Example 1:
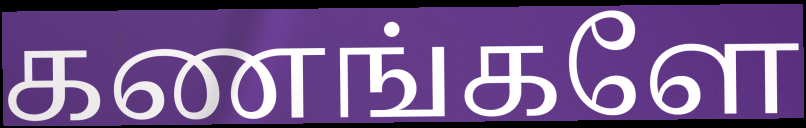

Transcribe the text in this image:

கணங்களே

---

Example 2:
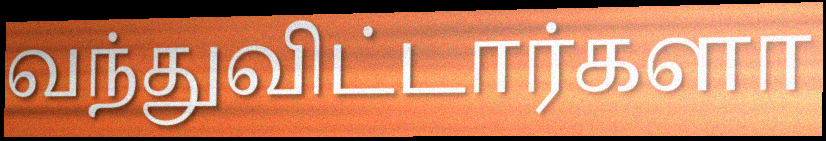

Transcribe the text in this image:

வந்துவிட்டார்களா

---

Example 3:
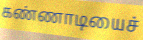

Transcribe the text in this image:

கண்ணாடியைச்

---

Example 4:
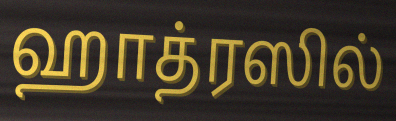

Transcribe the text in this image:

ஹாத்ரஸில்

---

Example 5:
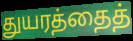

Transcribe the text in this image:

துயரத்தைத்